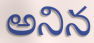
అనిన